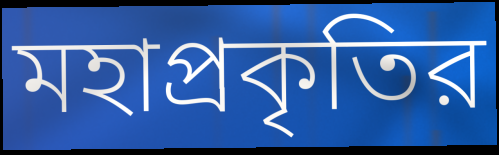
মহাপ্রকৃতির